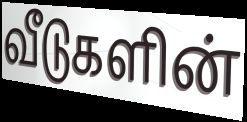
வீடுகளின்